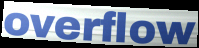
overflow